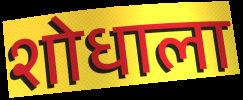
शोधाला